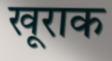
खूराक